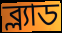
ব্ল্যাড